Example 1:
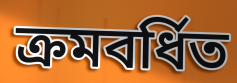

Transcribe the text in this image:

ক্ৰমবৰ্ধিত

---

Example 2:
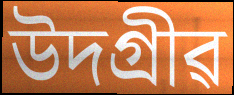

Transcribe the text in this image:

উদগ্ৰীৱ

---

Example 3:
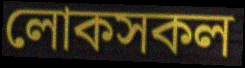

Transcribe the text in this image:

লোকসকল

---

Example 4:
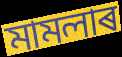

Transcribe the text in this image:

মামলাৰ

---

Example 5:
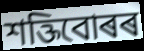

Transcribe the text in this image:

শক্তিবোৰৰ